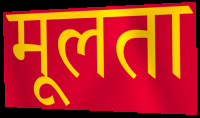
मूलता